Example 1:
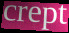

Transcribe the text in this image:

crept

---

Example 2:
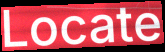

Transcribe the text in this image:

Locate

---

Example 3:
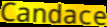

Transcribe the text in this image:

Candace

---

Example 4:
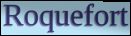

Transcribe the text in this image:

Roquefort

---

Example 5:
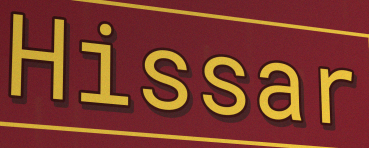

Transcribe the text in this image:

Hissar